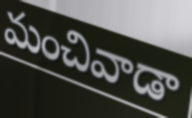
మంచివాడా